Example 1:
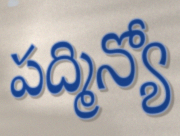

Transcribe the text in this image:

పద్మిన్యో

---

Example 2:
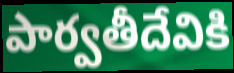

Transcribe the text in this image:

పార్వతీదేవికి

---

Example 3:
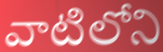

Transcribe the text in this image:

వాటిలోని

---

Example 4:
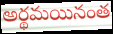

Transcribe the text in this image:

అర్థమయినంత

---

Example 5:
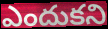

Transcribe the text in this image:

ఎందుకని